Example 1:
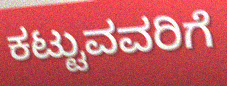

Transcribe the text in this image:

ಕಟ್ಟುವವರಿಗೆ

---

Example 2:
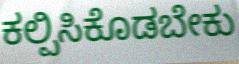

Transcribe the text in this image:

ಕಲ್ಪಿಸಿಕೊಡಬೇಕು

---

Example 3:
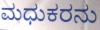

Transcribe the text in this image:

ಮಧುಕರನು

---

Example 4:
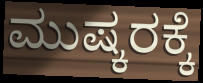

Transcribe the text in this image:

ಮುಷ್ಕರಕ್ಕೆ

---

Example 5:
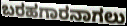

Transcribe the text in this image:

ಬರಹಗಾರನಾಗಲು